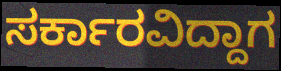
ಸರ್ಕಾರವಿದ್ದಾಗ